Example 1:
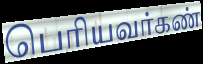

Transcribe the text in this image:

பெரியவர்கண்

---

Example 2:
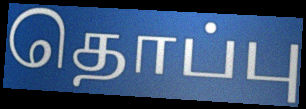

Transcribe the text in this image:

தொப்பு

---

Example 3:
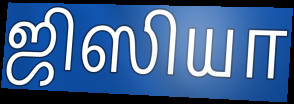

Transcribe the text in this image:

ஜிஸியா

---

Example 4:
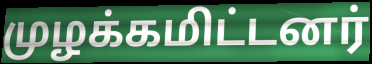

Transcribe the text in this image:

முழக்கமிட்டனர்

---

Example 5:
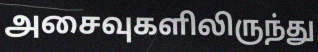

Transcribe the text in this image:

அசைவுகளிலிருந்து